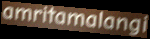
amritamalangi